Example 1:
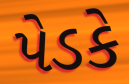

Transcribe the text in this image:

પેડકે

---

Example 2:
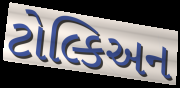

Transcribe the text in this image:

ટોલ્કિઅન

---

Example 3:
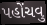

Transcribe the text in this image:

પહોંચવુ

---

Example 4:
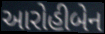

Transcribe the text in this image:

આરોહીબેન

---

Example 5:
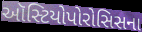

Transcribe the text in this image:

ઑસ્ટિયોપોરોસિસના